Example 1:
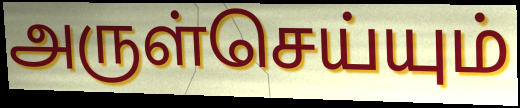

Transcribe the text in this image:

அருள்செய்யும்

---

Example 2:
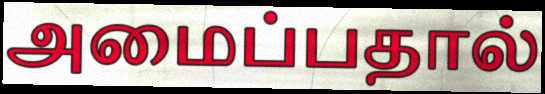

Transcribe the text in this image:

அமைப்பதால்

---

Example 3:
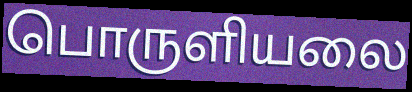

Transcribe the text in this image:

பொருளியலை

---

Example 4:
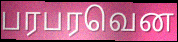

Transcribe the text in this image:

பரபரவென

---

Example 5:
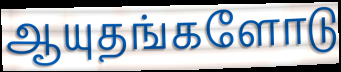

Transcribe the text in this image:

ஆயுதங்களோடு